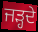
ਜੜ੍ਹਦੇ